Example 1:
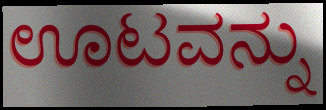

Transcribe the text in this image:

ಊಟವನ್ನು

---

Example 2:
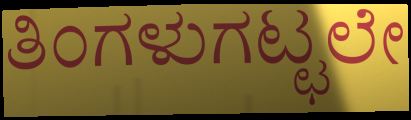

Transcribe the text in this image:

ತಿಂಗಳುಗಟ್ಟಲೇ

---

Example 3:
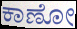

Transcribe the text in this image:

ಕಾಣೋ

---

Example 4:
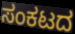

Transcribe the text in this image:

ಸಂಕಟದ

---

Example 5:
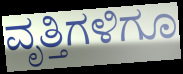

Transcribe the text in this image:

ವೃತ್ತಿಗಳಿಗೂ